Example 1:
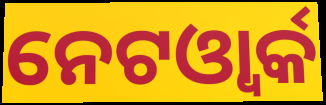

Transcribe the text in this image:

ନେଟଓ୍ବାର୍କ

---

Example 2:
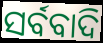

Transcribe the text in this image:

ସର୍ବବାଦି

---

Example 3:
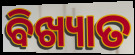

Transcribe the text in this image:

ବିଖ୍ୟାତ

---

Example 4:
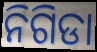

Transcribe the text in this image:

ନିଗିଡା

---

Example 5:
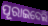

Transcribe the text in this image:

ପୂରାଇଦେଲି